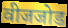
वीजजोड